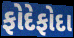
ફોદેફોદા